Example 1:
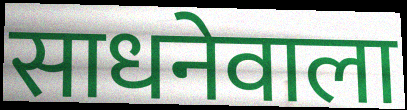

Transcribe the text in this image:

साधनेवाला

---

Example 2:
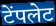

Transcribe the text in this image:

टेंपलेट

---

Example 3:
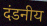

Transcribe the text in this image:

दंडनीय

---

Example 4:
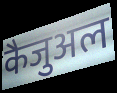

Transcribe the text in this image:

कैजुअल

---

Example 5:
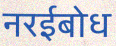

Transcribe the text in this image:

नरईबोध